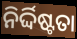
ନିର୍ଦ୍ଦିଷ୍ଟତା